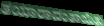
ತಯಾರಾದಂತಾಯಿತು